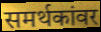
समर्थकांवर